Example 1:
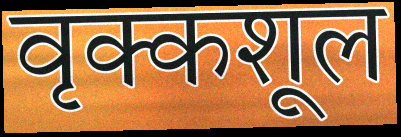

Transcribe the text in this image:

वृक्कशूल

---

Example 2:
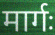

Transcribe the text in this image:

मार्गः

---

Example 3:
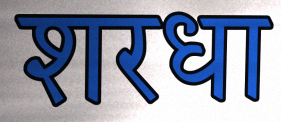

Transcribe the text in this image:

शरधा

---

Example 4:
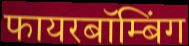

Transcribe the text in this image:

फायरबॉम्बिंग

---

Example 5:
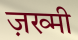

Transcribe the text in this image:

ज़ख्मी